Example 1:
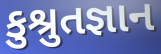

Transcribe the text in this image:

કુશ્રુતજ્ઞાન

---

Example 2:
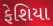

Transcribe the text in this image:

ફેશિયા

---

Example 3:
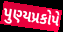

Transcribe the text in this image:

પુણ્યપ્રકોપે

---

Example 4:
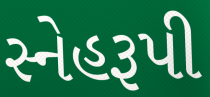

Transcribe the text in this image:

સ્નેહરૂપી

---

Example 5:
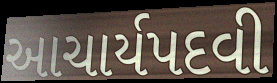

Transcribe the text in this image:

આચાર્યપદવી